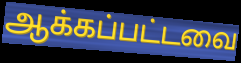
ஆக்கப்பட்டவை